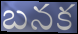
బనక